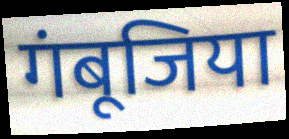
गंबूजिया